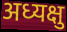
अध्यक्षु